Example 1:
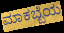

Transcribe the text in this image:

ಮಾಕಬ್ಬೆಯ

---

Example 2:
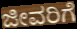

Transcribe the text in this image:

ಜೀವರಿಗೆ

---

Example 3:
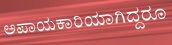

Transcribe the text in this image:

ಅಪಾಯಕಾರಿಯಾಗಿದ್ದರೂ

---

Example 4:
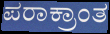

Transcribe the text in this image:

ಪರಾಕ್ರಾಂತ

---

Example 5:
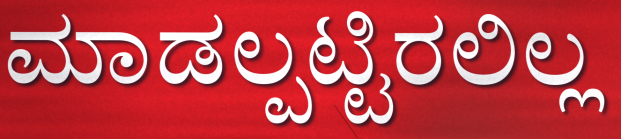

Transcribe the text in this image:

ಮಾಡಲ್ಪಟ್ಟಿರಲಿಲ್ಲ